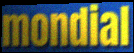
mondial